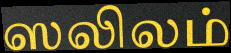
ஸலிலம்